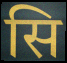
सि